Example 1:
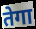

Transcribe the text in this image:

तेगा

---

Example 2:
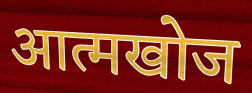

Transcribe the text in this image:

आत्मखोज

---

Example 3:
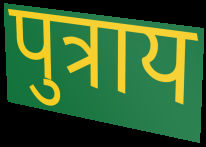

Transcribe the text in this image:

पुत्राय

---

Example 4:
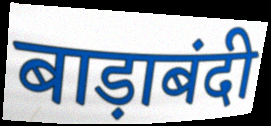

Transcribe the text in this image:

बाड़ाबंदी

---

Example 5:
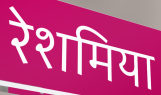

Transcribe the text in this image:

रेशमिया